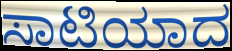
ಸಾಟಿಯಾದ